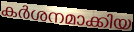
കർശനമാക്കിയ